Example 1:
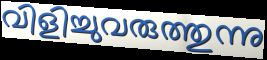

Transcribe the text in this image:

വിളിച്ചുവരുത്തുന്നു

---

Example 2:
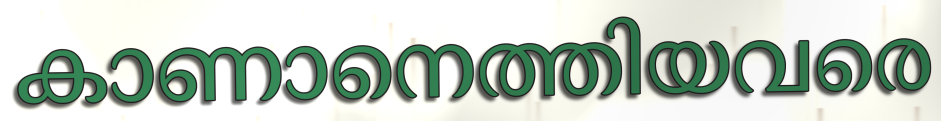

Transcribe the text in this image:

കാണാനെത്തിയവരെ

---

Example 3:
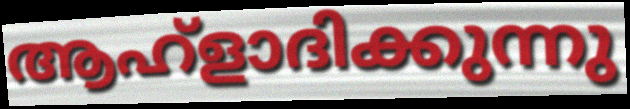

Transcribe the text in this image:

ആഹ്ളാദിക്കുന്നു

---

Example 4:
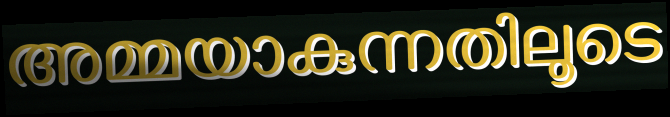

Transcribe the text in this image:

അമ്മയാകുന്നതിലൂടെ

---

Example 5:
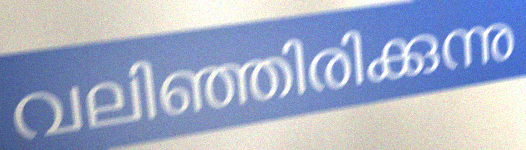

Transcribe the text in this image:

വലിഞ്ഞിരിക്കുന്നു